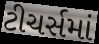
ટીચર્સમાં